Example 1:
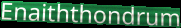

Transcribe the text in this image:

Enaiththondrum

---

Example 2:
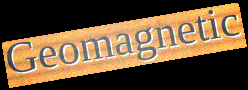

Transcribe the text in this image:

Geomagnetic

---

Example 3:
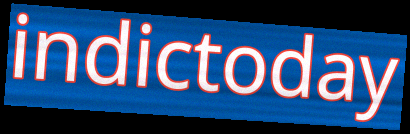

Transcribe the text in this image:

indictoday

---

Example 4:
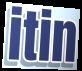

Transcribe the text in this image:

itin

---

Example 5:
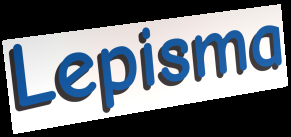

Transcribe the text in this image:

Lepisma